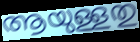
ആയുള്ളതു